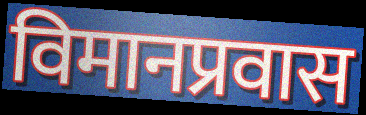
विमानप्रवास